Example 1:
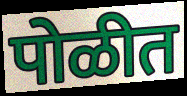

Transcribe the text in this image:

पोळीत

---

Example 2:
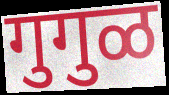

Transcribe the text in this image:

गुगुळ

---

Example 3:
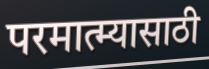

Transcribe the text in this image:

परमात्म्यासाठी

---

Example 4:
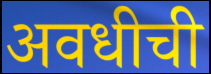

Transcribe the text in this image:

अवधीची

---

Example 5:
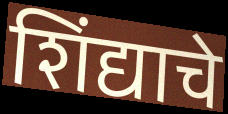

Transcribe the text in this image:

शिंद्याचे